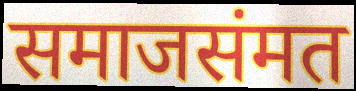
समाजसंमत